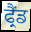
ਫ੍ਰੈਂਡ